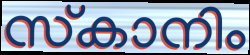
സ്‌കാനിം